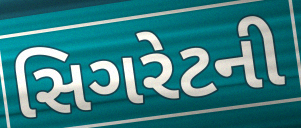
સિગરેટની